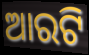
ଆରଟି